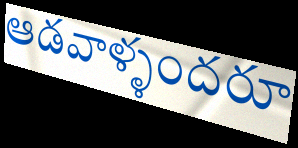
ఆడవాళ్ళందరూ